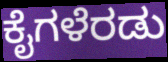
ಕೈಗಳೆರಡು